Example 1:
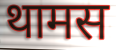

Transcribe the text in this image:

थामस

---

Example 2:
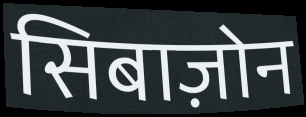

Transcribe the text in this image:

सिबाज़ोन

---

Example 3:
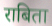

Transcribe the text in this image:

राबिता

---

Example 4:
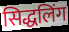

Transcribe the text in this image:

सिद्धलिंग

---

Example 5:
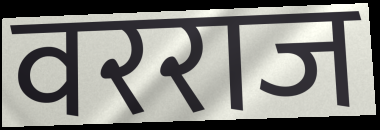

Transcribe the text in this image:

वरराज